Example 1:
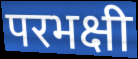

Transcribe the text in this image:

परभक्षी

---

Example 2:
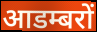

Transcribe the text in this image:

आडम्बरों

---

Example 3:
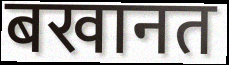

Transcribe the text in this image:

बखानत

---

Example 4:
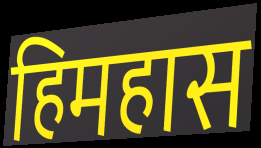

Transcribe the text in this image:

हिमहास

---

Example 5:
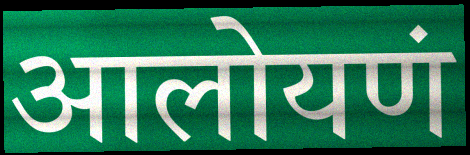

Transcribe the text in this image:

आलोयणं